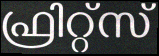
ഫ്രിറ്റ്സ്